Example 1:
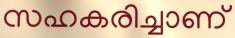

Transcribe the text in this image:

സഹകരിച്ചാണ്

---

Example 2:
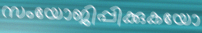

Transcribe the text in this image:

സംയോജിപ്പിക്കുകയോ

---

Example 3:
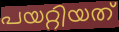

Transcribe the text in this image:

പയറ്റിയത്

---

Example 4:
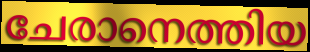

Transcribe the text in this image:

ചേരാനെത്തിയ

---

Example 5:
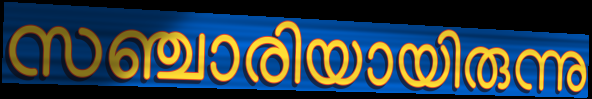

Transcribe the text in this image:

സഞ്ചാരിയായിരുന്നു